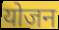
योजन